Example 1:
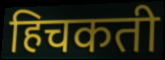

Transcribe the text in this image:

हिचकती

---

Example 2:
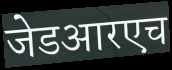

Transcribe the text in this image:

जेडआरएच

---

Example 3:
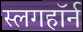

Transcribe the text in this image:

स्लगहॉर्न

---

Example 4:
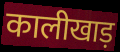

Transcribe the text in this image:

कालीखाड़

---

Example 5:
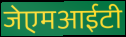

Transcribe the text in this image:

जेएमआईटी